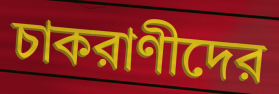
চাকরাণীদের